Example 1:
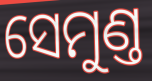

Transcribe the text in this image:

ସେମୁଣ୍ତ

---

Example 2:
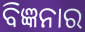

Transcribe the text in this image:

ବିଜ୍ଞନାର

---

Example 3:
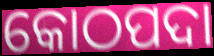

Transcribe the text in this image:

କୋଠପଦା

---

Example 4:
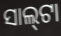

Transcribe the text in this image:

ସାଲ୍‌ଟା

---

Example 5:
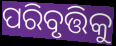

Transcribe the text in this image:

ପରିବୃତ୍ତିକୁ